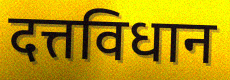
दत्तविधान